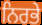
ਨਿਰਭੇ